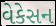
વેકેસન